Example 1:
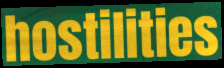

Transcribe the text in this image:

hostilities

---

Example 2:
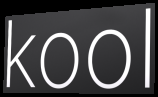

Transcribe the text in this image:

kool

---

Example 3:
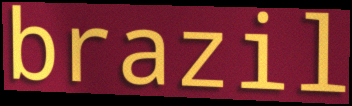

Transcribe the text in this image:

brazil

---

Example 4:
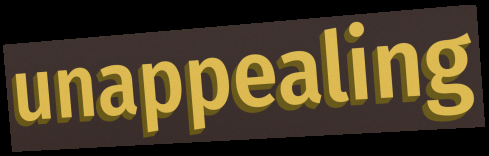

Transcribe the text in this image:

unappealing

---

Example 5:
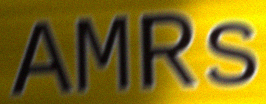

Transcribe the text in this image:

AMRs